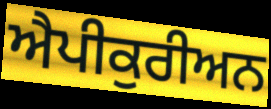
ਐਪੀਕੁਰੀਅਨ